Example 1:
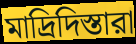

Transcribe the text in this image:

মাদ্রিদিস্তারা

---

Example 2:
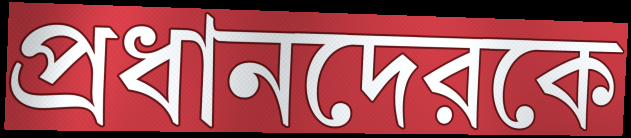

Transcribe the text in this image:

প্রধানদেরকে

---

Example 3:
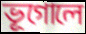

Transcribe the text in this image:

ভূগোলে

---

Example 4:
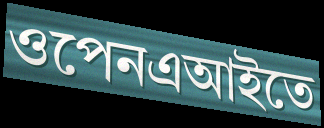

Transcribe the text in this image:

ওপেনএআইতে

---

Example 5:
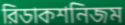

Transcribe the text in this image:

রিডাকশনিজম